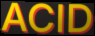
ACID